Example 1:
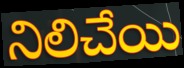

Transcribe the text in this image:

నిలిచేయి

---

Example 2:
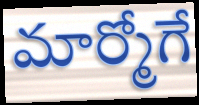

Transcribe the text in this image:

మార్మోగే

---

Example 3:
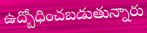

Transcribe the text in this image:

ఉద్బోధించబడుతున్నారు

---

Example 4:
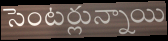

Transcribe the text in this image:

సెంటర్లున్నాయి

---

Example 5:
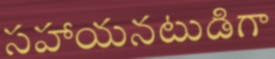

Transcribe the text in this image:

సహాయనటుడిగా